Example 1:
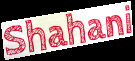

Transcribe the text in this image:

Shahani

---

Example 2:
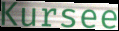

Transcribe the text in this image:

Kursee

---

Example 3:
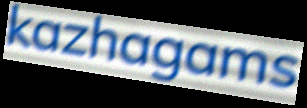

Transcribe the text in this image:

kazhagams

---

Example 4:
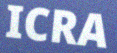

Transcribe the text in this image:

ICRA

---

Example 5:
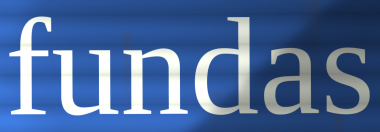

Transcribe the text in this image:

fundas